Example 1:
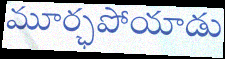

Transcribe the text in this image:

మూర్ఛపోయాడు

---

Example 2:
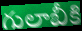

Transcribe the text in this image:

గులాబీకి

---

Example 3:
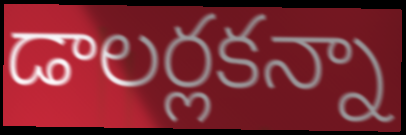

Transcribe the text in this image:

డాలర్లకన్నా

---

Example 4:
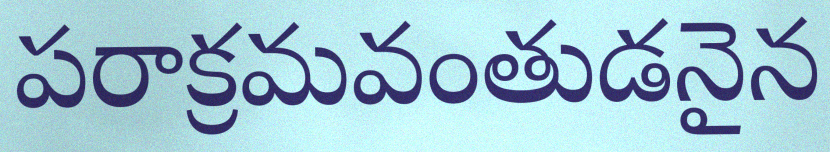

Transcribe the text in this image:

పరాక్రమవంతుడనైన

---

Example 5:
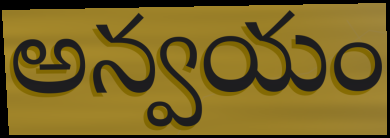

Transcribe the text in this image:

అన్వయం